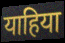
याहिया